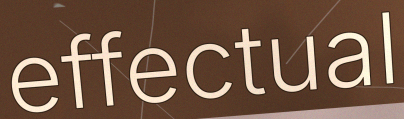
effectual